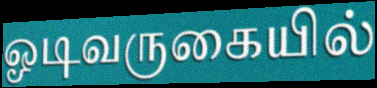
ஓடிவருகையில்